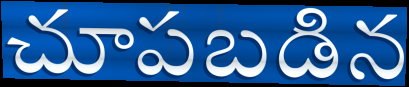
చూపబడిన